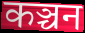
कञ्चन